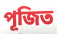
পূজিত